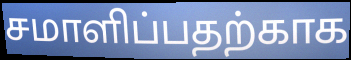
சமாளிப்பதற்காக